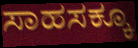
ಸಾಹಸಕ್ಕೂ